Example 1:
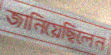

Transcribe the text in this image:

জানিয়েছিলেন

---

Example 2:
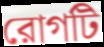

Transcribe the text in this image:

রোগটি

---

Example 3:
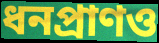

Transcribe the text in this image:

ধনপ্রাণও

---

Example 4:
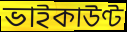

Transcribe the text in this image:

ভাইকাউণ্ট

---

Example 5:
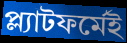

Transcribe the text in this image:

প্ল্যাটফর্মেই